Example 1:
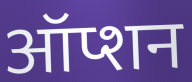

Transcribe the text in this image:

ऑप्‍शन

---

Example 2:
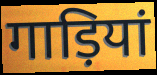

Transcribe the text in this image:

गाड़ियां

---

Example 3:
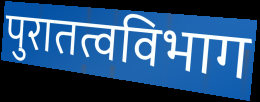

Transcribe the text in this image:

पुरातत्वविभाग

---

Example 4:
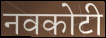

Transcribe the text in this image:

नवकोटी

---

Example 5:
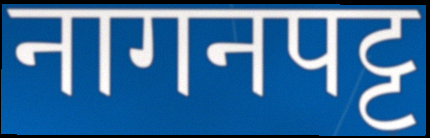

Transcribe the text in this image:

नागनपट्ट